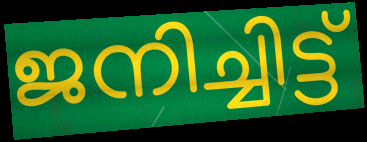
ജനിച്ചിട്ട്